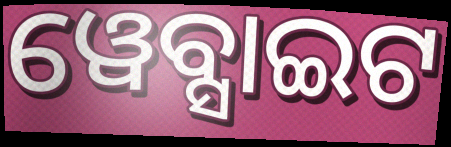
ୱେବ୍ସାଇଟ